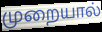
முறையால்